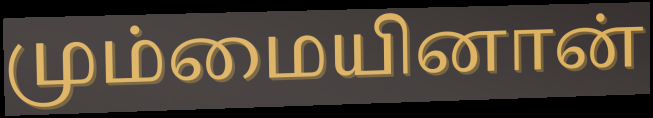
மும்மையினான்